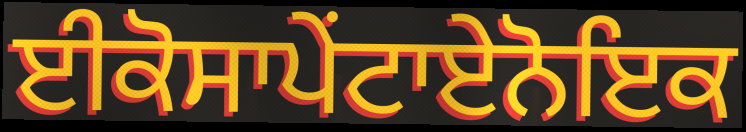
ਈਕੋਸਾਪੇਂਟਾਏਨੋਇਕ